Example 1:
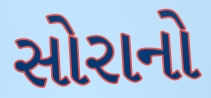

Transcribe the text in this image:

સોરાનો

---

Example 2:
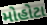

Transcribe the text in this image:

મોહોટા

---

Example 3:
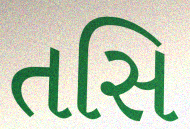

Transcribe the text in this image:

તસિ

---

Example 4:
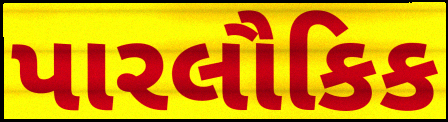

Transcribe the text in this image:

પારલૌકિક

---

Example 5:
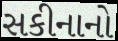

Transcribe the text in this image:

સકીનાનો